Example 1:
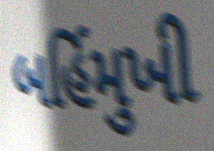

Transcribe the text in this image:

બર્હિમુખી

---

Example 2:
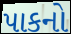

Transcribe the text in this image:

પાકનો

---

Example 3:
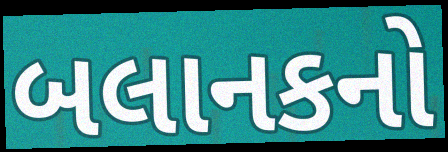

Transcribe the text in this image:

બલાનકનો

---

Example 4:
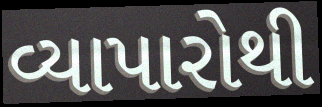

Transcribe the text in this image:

વ્યાપારોથી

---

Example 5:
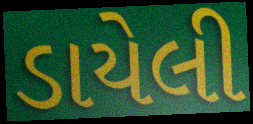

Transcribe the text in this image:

ડાયેલી